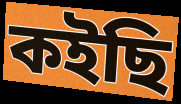
কইছি